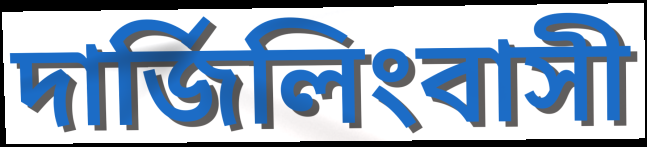
দার্জিলিংবাসী